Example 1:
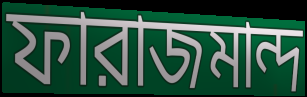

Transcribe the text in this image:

ফারাজমান্দ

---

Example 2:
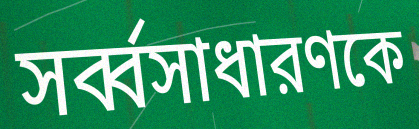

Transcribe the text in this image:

সর্ব্বসাধারণকে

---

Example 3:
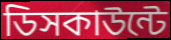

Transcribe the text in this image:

ডিসকাউন্টে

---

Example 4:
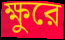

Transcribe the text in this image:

ক্ষুরে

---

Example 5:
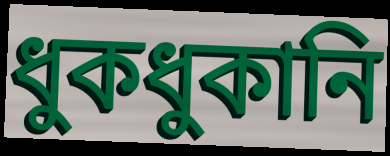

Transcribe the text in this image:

ধুকধুকানি